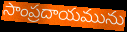
సాంప్రదాయమును